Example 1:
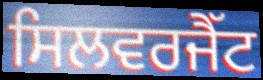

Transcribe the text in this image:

ਸਿਲਵਰਜੈੱਟ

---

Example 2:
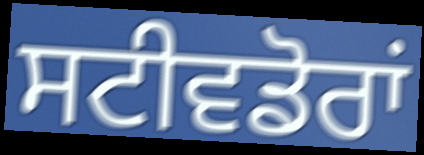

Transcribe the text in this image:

ਸਟੀਵਡੋਰਾਂ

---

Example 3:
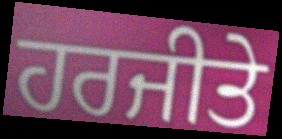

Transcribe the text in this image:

ਹਰਜੀਤੇ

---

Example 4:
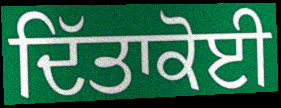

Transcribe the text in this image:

ਦਿੱਤਾਕੋਈ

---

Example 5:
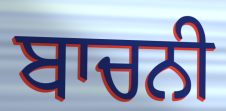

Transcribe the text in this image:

ਬਾਚਨੀ